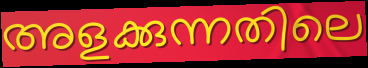
അളക്കുന്നതിലെ